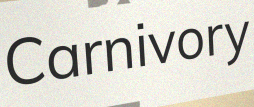
Carnivory